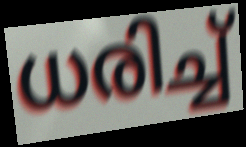
ധരിച്ച്